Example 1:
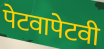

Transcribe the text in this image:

पेटवापेटवी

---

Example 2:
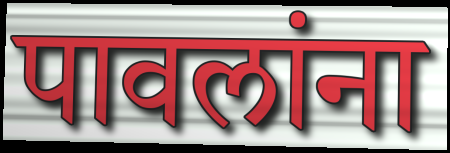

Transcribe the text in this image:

पावलांना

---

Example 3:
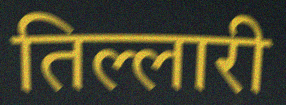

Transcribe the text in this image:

तिल्लारी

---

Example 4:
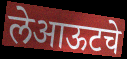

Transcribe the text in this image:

लेआऊटचे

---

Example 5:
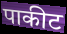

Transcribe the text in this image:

पाकीट